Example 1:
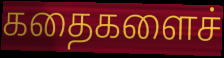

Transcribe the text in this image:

கதைகளைச்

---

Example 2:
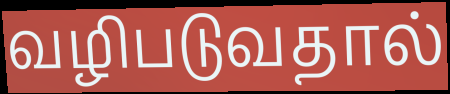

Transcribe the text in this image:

வழிபடுவதால்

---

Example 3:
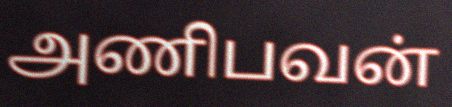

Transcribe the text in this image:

அணிபவன்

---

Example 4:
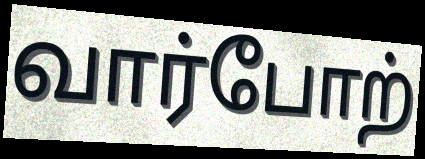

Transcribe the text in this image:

வார்போற்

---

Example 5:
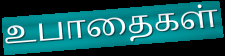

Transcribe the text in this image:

உபாதைகள்